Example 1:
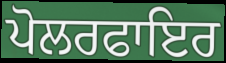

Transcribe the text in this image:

ਪੋਲਰਫਾਇਰ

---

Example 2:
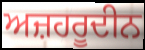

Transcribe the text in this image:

ਅਜ਼ਹਰੂਦੀਨ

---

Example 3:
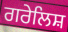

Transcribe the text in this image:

ਗਰੇਲਿਸ਼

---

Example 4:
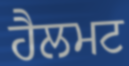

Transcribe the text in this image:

ਹੈਲਮਟ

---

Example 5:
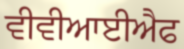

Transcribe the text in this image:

ਵੀਵੀਆਈਐਫ